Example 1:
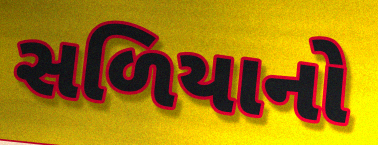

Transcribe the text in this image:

સળિયાનો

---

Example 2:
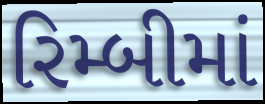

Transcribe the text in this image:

રિમ્બીમાં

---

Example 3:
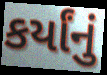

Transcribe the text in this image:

કર્યાંનું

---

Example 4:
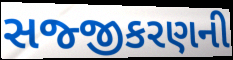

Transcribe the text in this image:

સજ્જીકરણની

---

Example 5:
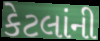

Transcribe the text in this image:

કેટલાંની